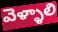
వెళ్ళాలి